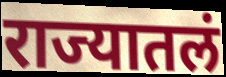
राज्यातलं